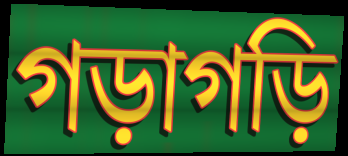
গড়াগড়ি